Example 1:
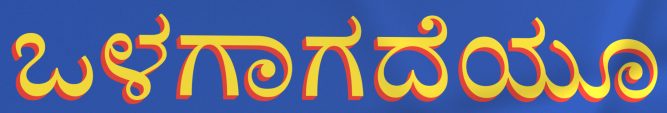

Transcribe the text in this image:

ಒಳಗಾಗದೆಯೂ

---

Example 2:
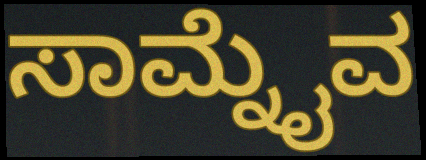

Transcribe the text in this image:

ಸಾಮ್ನೈವ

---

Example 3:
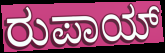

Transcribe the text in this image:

ರುಪಾಯ್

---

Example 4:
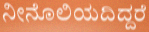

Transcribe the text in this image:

ನೀನೊಲಿಯದಿದ್ದರೆ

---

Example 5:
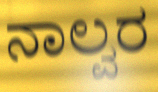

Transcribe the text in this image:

ನಾಲ್ವರ